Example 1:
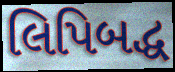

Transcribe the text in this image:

લિપિબદ્ધ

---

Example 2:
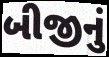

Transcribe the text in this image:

બીજીનું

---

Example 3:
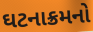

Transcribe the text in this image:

ઘટનાક્રમનો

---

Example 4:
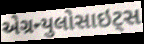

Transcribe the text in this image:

એગ્રન્યુલોસાઇટ્સ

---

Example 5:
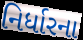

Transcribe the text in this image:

નિર્ધારના